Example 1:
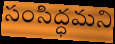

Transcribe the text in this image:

సంసిద్ధమని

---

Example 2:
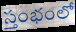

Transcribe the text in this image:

స్తంభంలో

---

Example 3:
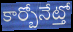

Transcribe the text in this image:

కార్బోనేట్తో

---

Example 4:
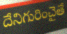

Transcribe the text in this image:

దేనిగురించైతే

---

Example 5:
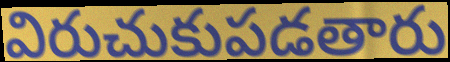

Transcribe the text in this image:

విరుచుకుపడతారు